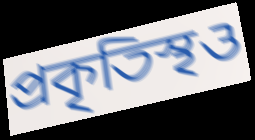
প্রকৃতিস্থও